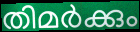
തിമർക്കും